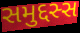
સમુદ્દસ્સ